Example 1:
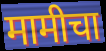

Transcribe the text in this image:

मामीचा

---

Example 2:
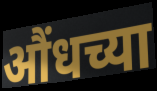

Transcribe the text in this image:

औंधच्या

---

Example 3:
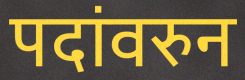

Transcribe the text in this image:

पदांवरुन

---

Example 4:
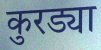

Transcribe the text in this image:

कुरड्या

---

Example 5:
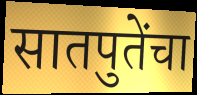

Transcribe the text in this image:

सातपुतेंचा